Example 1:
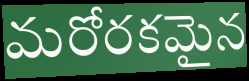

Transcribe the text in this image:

మరోరకమైన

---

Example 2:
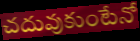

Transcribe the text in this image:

చదువుకుంటేనో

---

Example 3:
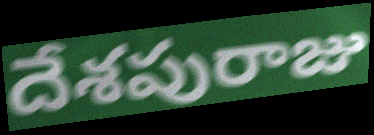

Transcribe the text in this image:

దేశపురాజు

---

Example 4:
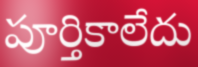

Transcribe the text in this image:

పూర్తికాలేదు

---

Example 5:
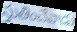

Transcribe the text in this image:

స్తుతించేవాడు